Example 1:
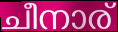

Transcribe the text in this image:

ചീനാര്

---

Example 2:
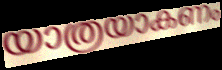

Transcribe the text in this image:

യാത്രയാകണം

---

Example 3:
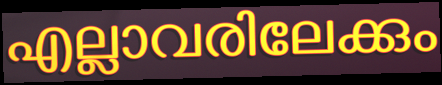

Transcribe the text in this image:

എല്ലാവരിലേക്കും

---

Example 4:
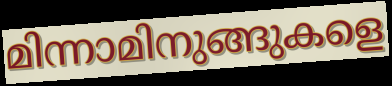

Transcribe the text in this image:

മിന്നാമിനുങ്ങുകളെ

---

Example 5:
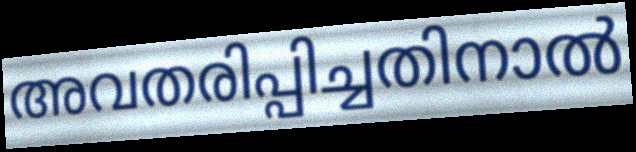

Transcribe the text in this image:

അവതരിപ്പിച്ചതിനാൽ